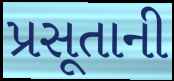
પ્રસૂતાની